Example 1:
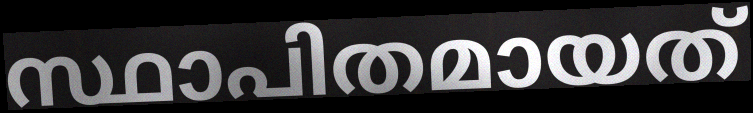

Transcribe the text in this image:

സ്ഥാപിതമായത്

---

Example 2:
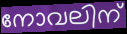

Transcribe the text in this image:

നോവലിന്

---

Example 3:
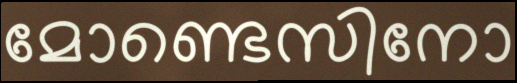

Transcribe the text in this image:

മോണ്ടെസിനോ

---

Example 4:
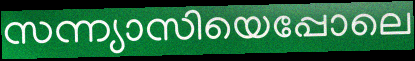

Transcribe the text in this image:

സന്ന്യാസിയെപ്പോലെ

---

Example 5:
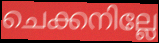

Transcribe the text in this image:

ചെക്കനില്ലേ